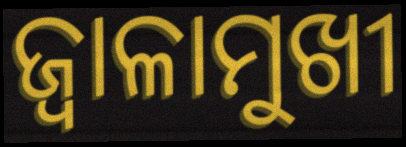
ଜ୍ୱାଳାମୁଖୀ